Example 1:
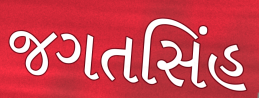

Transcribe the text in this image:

જગતસિંહ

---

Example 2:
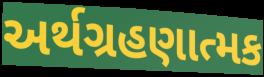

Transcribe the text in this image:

અર્થગ્રહણાત્મક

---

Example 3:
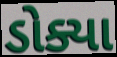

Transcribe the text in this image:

ડોક્યા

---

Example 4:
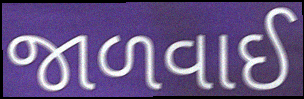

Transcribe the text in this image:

જાળવાઈ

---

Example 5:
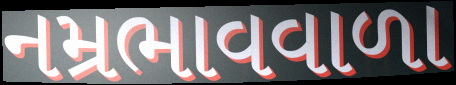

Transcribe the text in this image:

નમ્રભાવવાળા